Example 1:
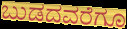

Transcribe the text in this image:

ಬುಡದವರೆಗೂ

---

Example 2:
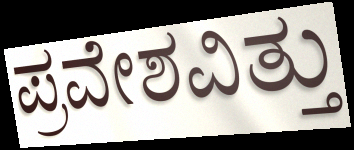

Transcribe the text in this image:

ಪ್ರವೇಶವಿತ್ತು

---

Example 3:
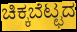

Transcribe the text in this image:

ಚಿಕ್ಕಬೆಟ್ಟದ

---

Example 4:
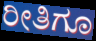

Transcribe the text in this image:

ರೀತಿಗೂ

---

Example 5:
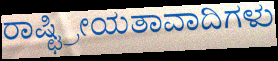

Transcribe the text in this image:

ರಾಷ್ಟ್ರೀಯತಾವಾದಿಗಳು